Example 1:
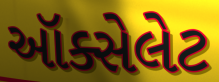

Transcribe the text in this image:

ઑક્સેલેટ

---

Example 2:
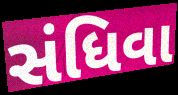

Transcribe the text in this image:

સંધિવા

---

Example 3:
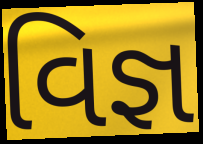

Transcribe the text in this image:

વિજ્ઞ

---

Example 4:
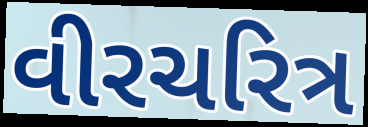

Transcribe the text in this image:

વીરચરિત્ર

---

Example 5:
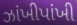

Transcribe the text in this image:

ઝાંખીપાંખી